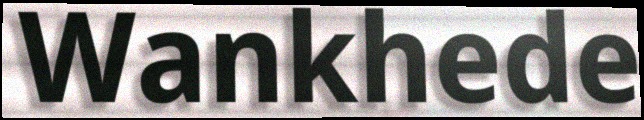
Wankhede